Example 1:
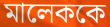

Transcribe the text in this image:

মালেককে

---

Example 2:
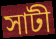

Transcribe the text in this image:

সাটী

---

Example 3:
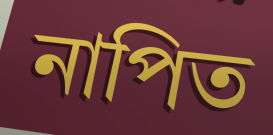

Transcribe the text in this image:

নাপিত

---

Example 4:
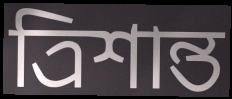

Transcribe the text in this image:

ত্রিশান্ত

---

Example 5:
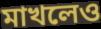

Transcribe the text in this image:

মাখলেও